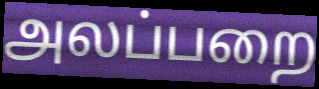
அலப்பறை